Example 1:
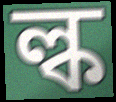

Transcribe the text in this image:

ল্ক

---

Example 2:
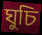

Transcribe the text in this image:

ঘুচি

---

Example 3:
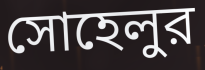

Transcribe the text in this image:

সোহেলুর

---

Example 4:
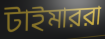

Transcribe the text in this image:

টাইমাররা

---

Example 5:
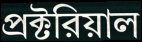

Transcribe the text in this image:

প্রক্টরিয়াল